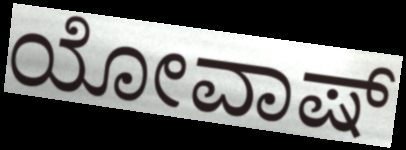
ಯೋವಾಷ್